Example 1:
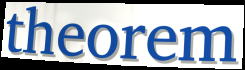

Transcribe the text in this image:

theorem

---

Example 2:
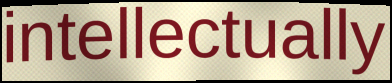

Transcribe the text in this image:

intellectually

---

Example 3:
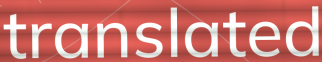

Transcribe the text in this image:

translated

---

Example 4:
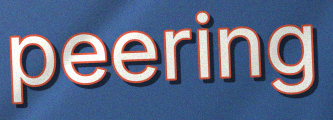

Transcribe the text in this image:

peering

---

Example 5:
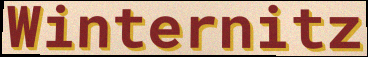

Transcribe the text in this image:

Winternitz